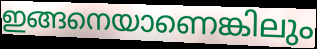
ഇങ്ങനെയാണെങ്കിലും